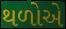
થળોએ